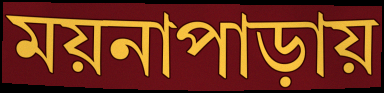
ময়নাপাড়ায়